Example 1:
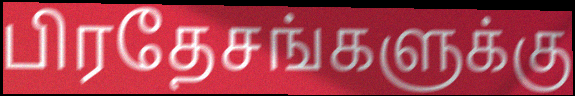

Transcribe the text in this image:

பிரதேசங்களுக்கு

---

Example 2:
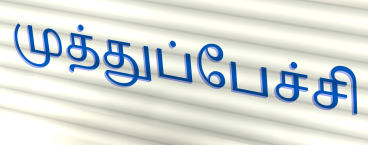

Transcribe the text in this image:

முத்துப்பேச்சி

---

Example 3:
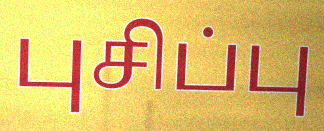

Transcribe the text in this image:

புசிப்பு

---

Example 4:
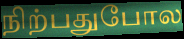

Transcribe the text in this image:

நிற்பதுபோல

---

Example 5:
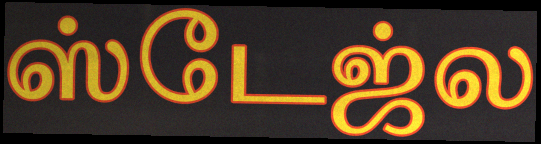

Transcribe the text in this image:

ஸ்டேஜ்ல